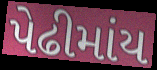
પેઢીમાંય